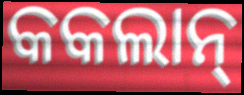
କକଲାନ୍